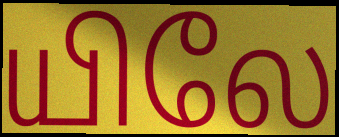
யிலே